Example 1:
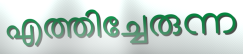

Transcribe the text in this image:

എത്തിച്ചേരുന്ന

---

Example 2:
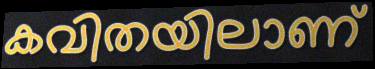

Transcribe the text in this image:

കവിതയിലാണ്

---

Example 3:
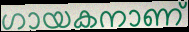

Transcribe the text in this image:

ഗായകനാണ്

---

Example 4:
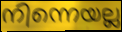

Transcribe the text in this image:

നിന്നെയല്ല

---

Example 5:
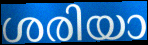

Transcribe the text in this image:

ശരിയാ